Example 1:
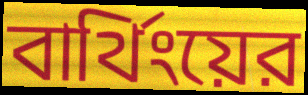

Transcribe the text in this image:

বার্থিংয়ের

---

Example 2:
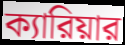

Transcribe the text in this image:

ক্যারিয়ার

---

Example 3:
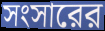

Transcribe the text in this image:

সংসারের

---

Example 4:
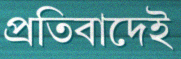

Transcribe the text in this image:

প্রতিবাদেই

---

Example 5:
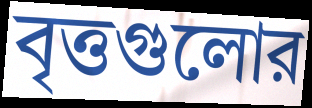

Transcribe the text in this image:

বৃত্তগুলোর